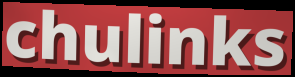
chulinks